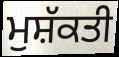
ਮੁਸ਼ੱਕਤੀ